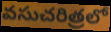
వసుచరిత్రలో